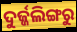
ଦୁର୍ଜ୍ଜଲିଙ୍ଗରୁ